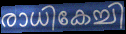
രാധികേച്ചി